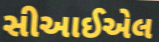
સીઆઈએલ